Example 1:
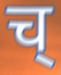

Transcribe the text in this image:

च्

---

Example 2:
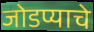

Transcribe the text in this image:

जोडप्याचे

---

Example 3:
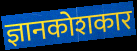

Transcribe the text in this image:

ज्ञानकोशकार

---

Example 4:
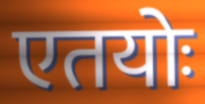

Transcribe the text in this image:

एतयोः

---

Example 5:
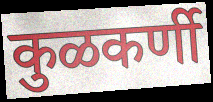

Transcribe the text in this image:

कुळकर्णी